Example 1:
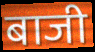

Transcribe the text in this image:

बाजी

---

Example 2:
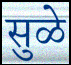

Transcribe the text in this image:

सुळे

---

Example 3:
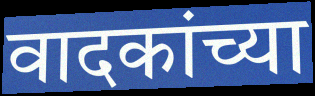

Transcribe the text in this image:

वादकांच्या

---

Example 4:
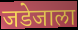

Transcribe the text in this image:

जडेजाला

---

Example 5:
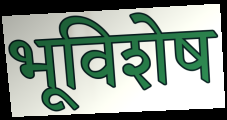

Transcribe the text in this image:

भूविशेष